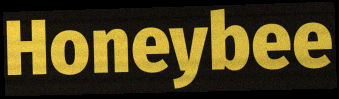
Honeybee